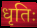
धृतिः